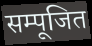
सम्पूजित